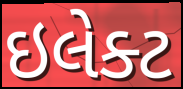
ઇલેક્ટ